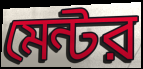
মেন্টর